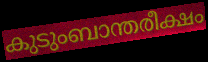
കുടുംബാന്തരീക്ഷം